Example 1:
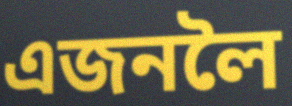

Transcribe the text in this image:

এজনলৈ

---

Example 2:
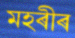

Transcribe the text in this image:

মহৰীৰ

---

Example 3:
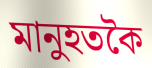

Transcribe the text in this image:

মানুহতকৈ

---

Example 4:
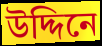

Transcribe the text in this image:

উদ্দিনে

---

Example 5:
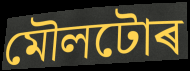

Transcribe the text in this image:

মৌলটোৰ